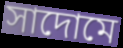
সাদোমে